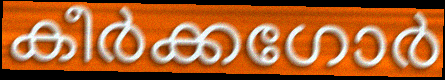
കീർക്കഗോർ